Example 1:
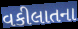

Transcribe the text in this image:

વકીલાતના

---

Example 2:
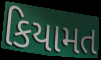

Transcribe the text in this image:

કિયામત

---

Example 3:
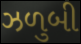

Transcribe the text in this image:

ઝળુબી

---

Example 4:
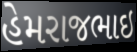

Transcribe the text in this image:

હેમરાજભાઇ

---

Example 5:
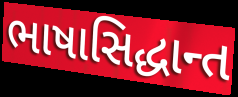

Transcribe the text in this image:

ભાષાસિદ્ધાન્ત